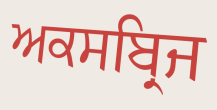
ਅਕਸਬ੍ਰਿਜ